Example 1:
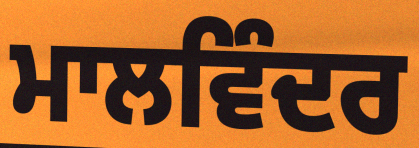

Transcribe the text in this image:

ਮਾਲਵਿੰਦਰ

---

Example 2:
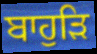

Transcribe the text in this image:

ਬਾਹੁੜਿ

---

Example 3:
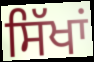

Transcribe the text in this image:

ਸਿੱਖਾਂ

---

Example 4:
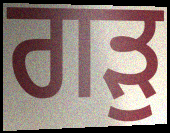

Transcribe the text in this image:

ਗੜੁ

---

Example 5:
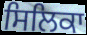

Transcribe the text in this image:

ਸਿਲਿਕਾ